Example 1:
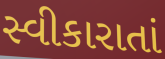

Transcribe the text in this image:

સ્વીકારાતાં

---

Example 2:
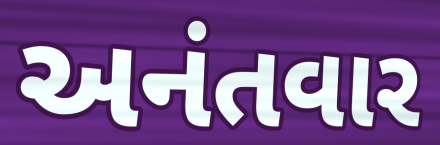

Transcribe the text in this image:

અનંતવાર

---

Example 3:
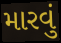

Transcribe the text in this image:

મારવું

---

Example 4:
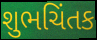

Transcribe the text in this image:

શુભચિંતક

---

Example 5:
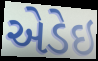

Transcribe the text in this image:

એડેઇ